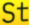
St